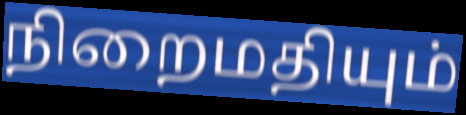
நிறைமதியும்